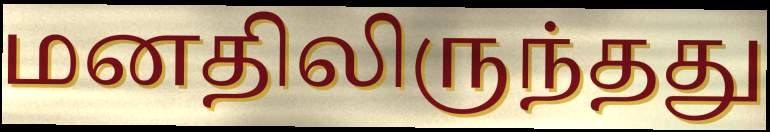
மனதிலிருந்தது